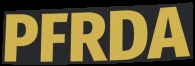
PFRDA